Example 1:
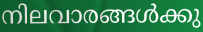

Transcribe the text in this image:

നിലവാരങ്ങൾക്കു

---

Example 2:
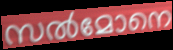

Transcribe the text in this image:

സൽമോനെ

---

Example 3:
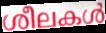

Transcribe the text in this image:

ശീലകൾ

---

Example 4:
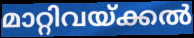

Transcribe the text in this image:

മാറ്റിവയ്ക്കൽ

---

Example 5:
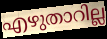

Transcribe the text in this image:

എഴുതാറില്ല